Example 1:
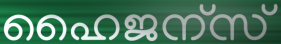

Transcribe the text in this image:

ഹൈജന്സ്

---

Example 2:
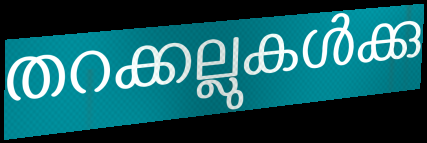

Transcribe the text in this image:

തറക്കല്ലുകൾക്കു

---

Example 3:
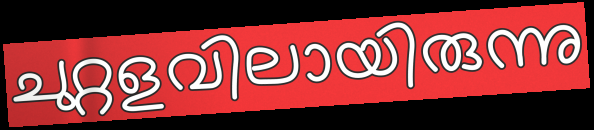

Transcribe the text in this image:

ചുറ്റളവിലായിരുന്നു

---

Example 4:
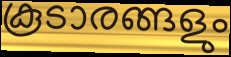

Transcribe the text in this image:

കൂടാരങ്ങളും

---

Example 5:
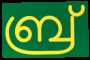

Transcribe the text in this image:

ബ്ര്